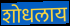
शोधलाय